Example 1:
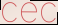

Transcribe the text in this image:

cec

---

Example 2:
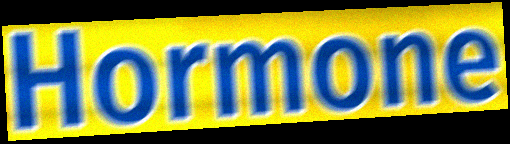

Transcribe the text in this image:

Hormone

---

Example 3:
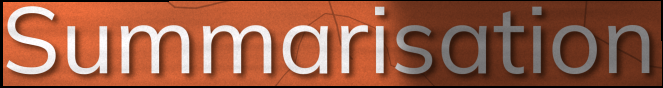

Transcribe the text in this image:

Summarisation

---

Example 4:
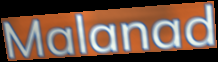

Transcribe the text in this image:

Malanad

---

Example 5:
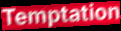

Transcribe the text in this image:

Temptation